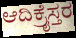
ಆದಿಕ್ರೈಸ್ತರ